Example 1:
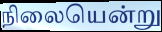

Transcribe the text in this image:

நிலையென்று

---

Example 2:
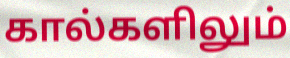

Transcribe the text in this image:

கால்களிலும்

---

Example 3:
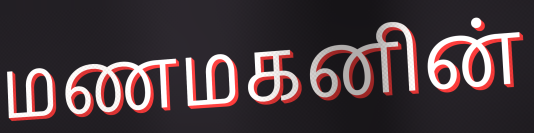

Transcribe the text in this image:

மணமகனின்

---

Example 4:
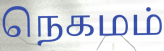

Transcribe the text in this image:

நெகமம்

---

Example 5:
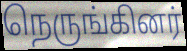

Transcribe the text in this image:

நெருங்கினர்